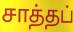
சாத்தப்